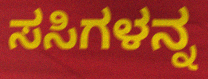
ಸಸಿಗಳನ್ನ